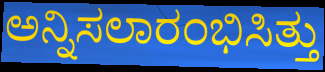
ಅನ್ನಿಸಲಾರಂಭಿಸಿತ್ತು